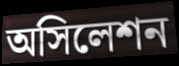
অসিলেশন